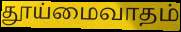
தூய்மைவாதம்